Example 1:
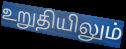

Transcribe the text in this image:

உறுதியிலும்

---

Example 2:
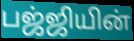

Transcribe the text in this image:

பஜ்ஜியின்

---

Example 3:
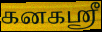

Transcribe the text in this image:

கனகஸ்ரீ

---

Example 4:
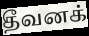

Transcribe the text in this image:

தீவனக்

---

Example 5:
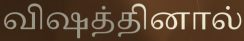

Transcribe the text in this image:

விஷத்தினால்